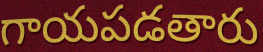
గాయపడతారు